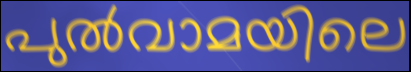
പുൽവാമയിലെ